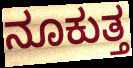
ನೂಕುತ್ತ